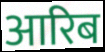
आरिब